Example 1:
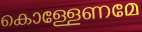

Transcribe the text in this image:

കൊള്ളേണമേ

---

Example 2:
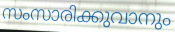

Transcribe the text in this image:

സംസാരിക്കുവാനും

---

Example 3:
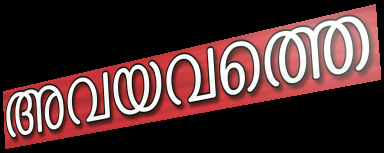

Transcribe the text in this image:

അവയവത്തെ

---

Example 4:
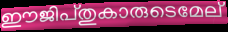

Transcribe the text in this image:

ഈജിപ്തുകാരുടെമേല്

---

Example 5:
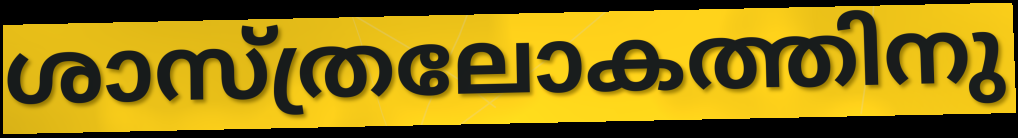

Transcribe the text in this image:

ശാസ്ത്രലോകത്തിനു